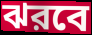
ঝরবে